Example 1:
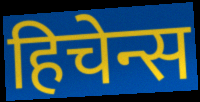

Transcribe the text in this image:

हिचेन्स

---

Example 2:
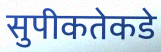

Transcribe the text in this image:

सुपीकतेकडे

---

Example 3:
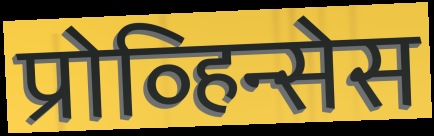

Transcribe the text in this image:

प्रोव्हिन्सेस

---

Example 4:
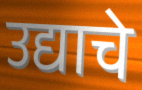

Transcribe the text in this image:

उद्याचे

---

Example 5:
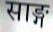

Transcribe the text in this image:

साङ्ग